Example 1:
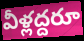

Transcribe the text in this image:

వీళ్లద్దరూ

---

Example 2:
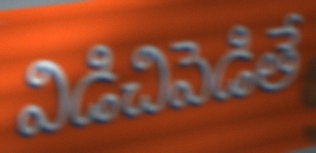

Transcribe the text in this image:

విడిచిపెడితే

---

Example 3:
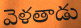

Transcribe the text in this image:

వెళతాడు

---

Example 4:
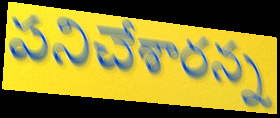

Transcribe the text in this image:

పనిచేశారన్న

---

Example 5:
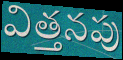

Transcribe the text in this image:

విత్తనపు